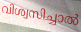
വിശ്വസിച്ചാൽ